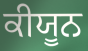
ਕੀਯੂਨ